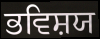
ਭਵਿਸ਼ਯ